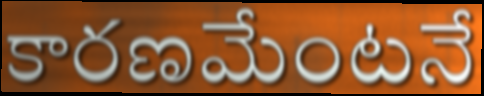
కారణమేంటనే